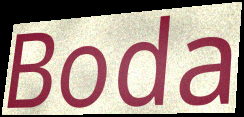
Boda